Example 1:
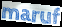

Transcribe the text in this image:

maruf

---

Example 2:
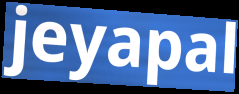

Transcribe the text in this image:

jeyapal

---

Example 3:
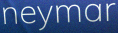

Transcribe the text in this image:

neymar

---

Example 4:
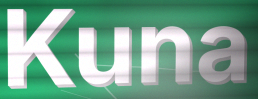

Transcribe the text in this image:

Kuna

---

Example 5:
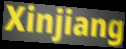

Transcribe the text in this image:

Xinjiang